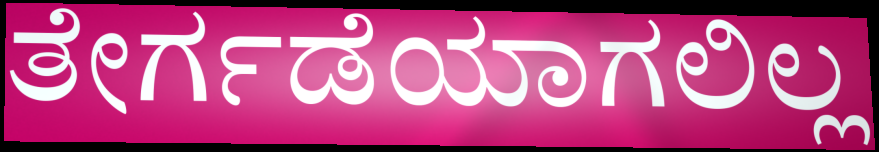
ತೇರ್ಗಡೆಯಾಗಲಿಲ್ಲ